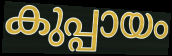
കുപ്പായം